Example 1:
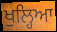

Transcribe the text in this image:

ਖੁਲ੍ਹਿਆ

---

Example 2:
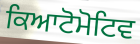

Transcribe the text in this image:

ਕਿਆਟੋਮੋਟਿਵ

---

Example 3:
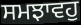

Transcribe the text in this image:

ਸਮਝਾਵਹੁ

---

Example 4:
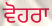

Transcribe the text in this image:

ਵੋਹਰਾ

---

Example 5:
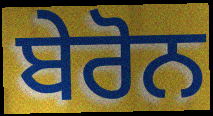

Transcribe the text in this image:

ਬੇਰੋਨ